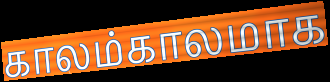
காலம்காலமாக